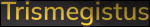
Trismegistus